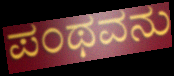
ಪಂಥವನು